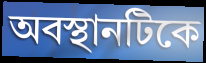
অবস্থানটিকে